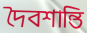
দৈবশান্তি